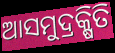
ଆସମୁଦ୍ରକ୍ଷିତି